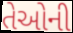
તેઓની